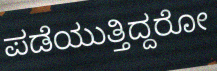
ಪಡೆಯುತ್ತಿದ್ದರೋ